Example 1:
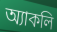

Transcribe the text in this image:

অ্যাকলি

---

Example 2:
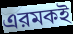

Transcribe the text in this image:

এরমকই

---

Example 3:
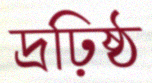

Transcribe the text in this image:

দ্রঢ়িষ্ঠ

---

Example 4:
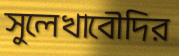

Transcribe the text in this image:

সুলেখাবৌদির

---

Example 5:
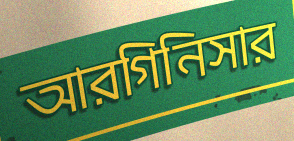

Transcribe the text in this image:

আরগিনিসার